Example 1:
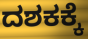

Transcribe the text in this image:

ದಶಕಕ್ಕೆ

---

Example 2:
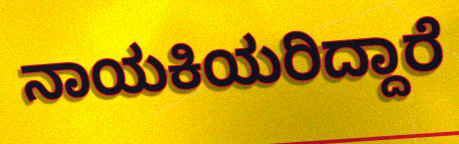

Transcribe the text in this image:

ನಾಯಕಿಯರಿದ್ದಾರೆ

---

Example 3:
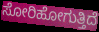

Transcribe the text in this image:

ಸೋರಿಹೋಗುತ್ತಿದೆ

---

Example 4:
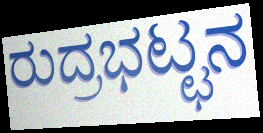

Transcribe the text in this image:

ರುದ್ರಭಟ್ಟನ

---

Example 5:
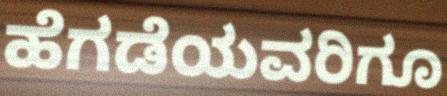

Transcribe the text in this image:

ಹೆಗಡೆಯವರಿಗೂ